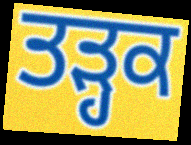
ਤੜ੍ਹਕ